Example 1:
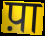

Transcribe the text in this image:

प़ा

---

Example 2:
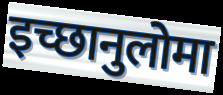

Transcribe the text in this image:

इच्छानुलोमा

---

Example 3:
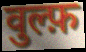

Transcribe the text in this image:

वुल्फ़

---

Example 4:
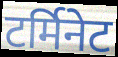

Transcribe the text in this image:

टर्मिनेट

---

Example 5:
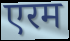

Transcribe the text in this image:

एरम